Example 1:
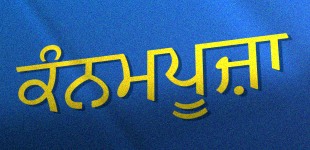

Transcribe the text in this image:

ਕੰਨਮਪੂਜ਼ਾ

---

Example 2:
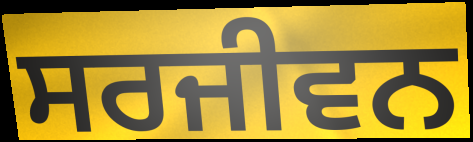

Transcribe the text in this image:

ਸਰਜੀਵਨ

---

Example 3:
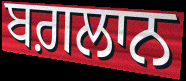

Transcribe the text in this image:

ਬਗ਼ਲਾਨ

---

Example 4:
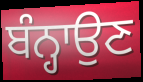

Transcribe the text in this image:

ਬੰਨ੍ਹਾਉਣ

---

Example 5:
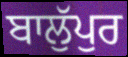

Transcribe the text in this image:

ਬਾਲੁੱਪੁਰ